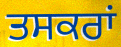
ਤਸਕਰਾਂ